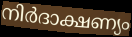
നിർദാക്ഷണ്യം